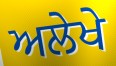
ਅਲੇਖੇ